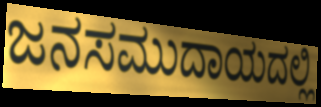
ಜನಸಮುದಾಯದಲ್ಲಿ